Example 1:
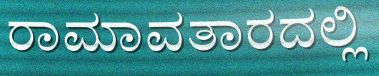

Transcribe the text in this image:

ರಾಮಾವತಾರದಲ್ಲಿ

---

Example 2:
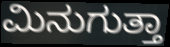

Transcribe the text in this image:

ಮಿನುಗುತ್ತಾ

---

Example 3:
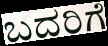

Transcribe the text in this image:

ಬದರಿಗೆ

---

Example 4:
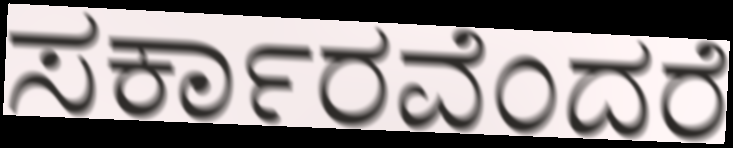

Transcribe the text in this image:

ಸರ್ಕಾರವೆಂದರೆ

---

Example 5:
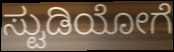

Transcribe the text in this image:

ಸ್ಟುಡಿಯೋಗೆ